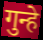
गुन्हे